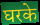
घरके